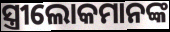
ସ୍ତ୍ରୀଲୋକମାନଙ୍କ